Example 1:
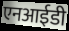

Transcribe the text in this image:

एनआईडी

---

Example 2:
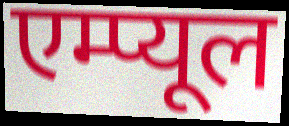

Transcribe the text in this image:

एम्प्यूल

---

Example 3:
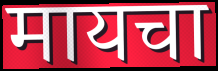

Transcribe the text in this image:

मायचा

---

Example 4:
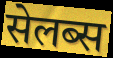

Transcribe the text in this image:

सेलब्स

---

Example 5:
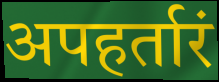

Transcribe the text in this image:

अपहर्तारं